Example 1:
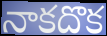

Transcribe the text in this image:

నాకదొక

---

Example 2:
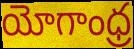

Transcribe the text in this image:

యోగాంధ్ర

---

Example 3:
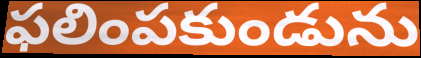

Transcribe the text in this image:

ఫలింపకుండును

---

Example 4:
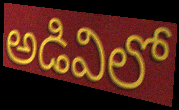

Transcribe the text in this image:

అడివిలో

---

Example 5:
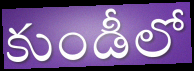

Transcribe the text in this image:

కుండీలో